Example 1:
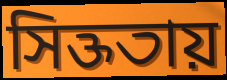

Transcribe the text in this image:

সিক্ততায়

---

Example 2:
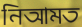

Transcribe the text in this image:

নিআমত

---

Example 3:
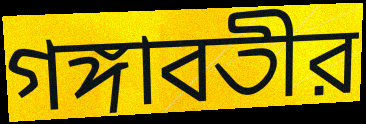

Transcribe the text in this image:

গঙ্গাবতীর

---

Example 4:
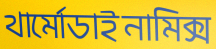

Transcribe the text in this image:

থার্মোডাইনামিক্স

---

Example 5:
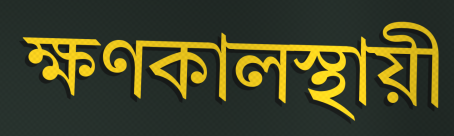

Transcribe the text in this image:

ক্ষণকালস্থায়ী